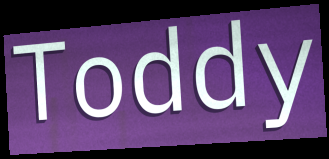
Toddy